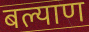
बल्याण